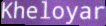
Kheloyar